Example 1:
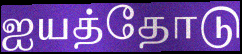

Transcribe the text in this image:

ஐயத்தோடு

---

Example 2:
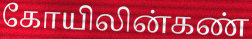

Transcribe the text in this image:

கோயிலின்கண்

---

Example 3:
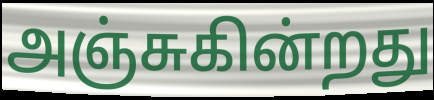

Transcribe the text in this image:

அஞ்சுகின்றது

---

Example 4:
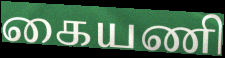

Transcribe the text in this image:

கையணி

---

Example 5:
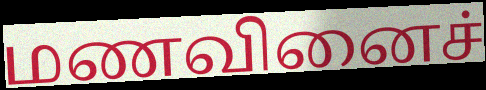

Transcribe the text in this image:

மணவினைச்